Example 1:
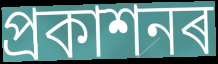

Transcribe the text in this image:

প্ৰকাশনৰ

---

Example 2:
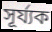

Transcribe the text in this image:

সূৰ্য্যক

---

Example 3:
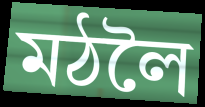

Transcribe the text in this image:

মঠলৈ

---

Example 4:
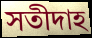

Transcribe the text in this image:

সতীদাহ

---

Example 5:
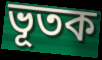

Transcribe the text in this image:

ভূতক